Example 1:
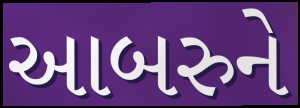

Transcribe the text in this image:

આબરુને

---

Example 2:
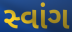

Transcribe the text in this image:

સ્વાંગ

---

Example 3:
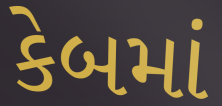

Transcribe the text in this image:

કેબમાં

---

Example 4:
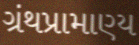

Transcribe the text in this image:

ગ્રંથપ્રામાણ્ય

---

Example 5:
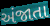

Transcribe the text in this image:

અંજાતા